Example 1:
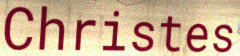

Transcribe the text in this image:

Christes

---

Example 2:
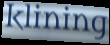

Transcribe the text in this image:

klining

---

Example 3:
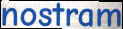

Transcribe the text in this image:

nostram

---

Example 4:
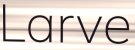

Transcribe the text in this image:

Larve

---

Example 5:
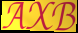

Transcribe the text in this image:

AXB